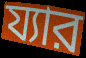
য্যার